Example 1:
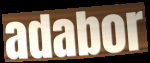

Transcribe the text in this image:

adabor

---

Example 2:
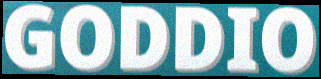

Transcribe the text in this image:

GODDIO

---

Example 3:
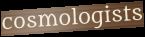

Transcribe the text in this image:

cosmologists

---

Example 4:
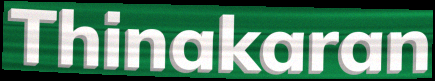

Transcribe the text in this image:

Thinakaran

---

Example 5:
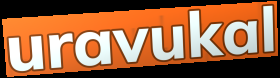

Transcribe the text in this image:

uravukal